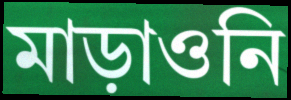
মাড়াওনি